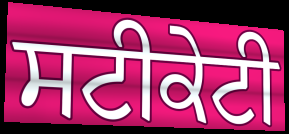
ਸਟੀਕੇਟੀ